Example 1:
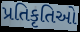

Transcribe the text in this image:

પ્રતિકૃતિઓ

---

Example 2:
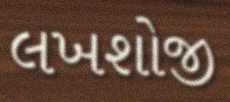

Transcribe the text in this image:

લખશોજી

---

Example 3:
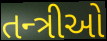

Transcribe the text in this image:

તન્ત્રીઓ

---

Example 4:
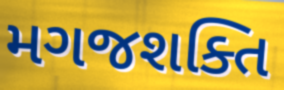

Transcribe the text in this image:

મગજશક્તિ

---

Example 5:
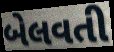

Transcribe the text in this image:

બેલવતી